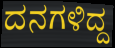
ದನಗಳಿದ್ದ